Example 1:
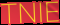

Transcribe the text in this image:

TNIE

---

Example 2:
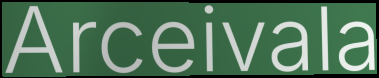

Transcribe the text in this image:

Arceivala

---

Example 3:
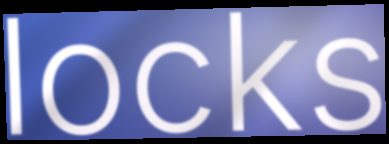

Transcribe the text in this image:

locks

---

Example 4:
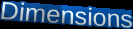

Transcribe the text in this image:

Dimensions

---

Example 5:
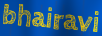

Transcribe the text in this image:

bhairavi